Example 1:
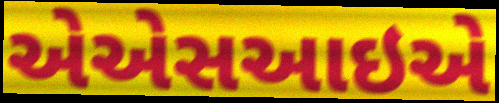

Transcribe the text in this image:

એએસઆઇએ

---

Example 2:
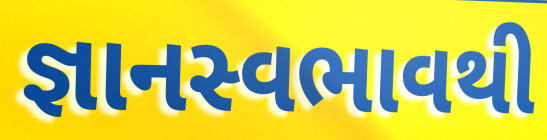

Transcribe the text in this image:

જ્ઞાનસ્વભાવથી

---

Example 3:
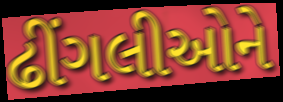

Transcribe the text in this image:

ઢીંગલીઓને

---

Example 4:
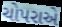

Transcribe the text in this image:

ચોપરાએ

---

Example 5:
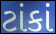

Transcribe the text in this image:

ટાંકાં